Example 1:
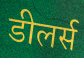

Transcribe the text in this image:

डीलर्स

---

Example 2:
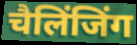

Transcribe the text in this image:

चैलिंजिंग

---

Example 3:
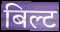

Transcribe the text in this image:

बिल्‍ट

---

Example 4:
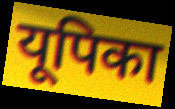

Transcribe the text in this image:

यूपिका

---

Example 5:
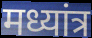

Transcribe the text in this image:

मध्यांत्र